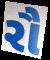
રૌ